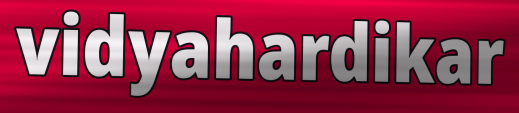
vidyahardikar